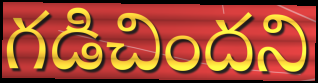
గడిచిందని